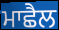
ਮਾਛੈਲ